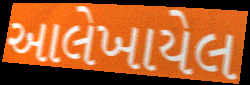
આલેખાયેલ